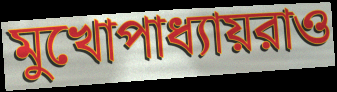
মুখোপাধ্যায়রাও